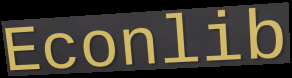
Econlib